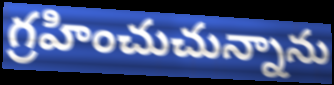
గ్రహించుచున్నాను